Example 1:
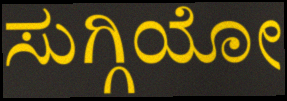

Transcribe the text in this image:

ಸುಗ್ಗಿಯೋ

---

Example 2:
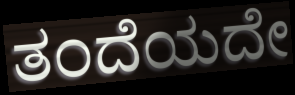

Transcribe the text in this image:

ತಂದೆಯದೇ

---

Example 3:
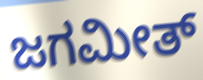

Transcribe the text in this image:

ಜಗಮೀತ್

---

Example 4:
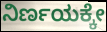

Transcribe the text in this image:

ನಿರ್ಣಯಕ್ಕೇ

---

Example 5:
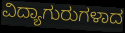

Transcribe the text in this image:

ವಿದ್ಯಾಗುರುಗಳಾದ